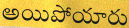
అయిపోయారు